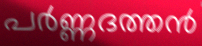
പർണ്ണദത്തൻ